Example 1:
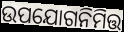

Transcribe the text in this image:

ଉପଯୋଗନିମିତ୍ତ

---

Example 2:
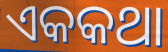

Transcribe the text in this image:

ଏକକଥା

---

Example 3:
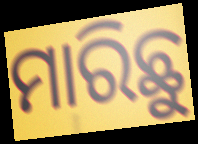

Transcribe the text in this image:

ମାରିଛୁ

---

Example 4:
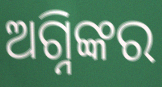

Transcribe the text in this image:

ଅଗ୍ନିଙ୍କର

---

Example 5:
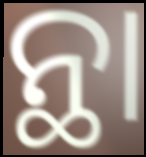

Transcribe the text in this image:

ନ୍ଥା